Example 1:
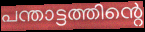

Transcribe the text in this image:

പന്താട്ടത്തിന്റെ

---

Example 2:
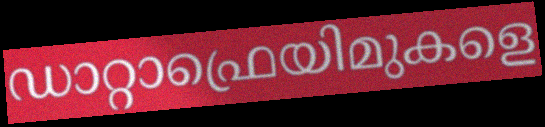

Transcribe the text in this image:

ഡാറ്റാഫ്രെയിമുകളെ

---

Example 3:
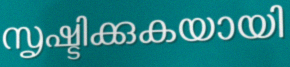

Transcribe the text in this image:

സൃഷ്ടിക്കുകയായി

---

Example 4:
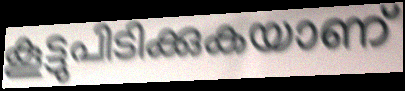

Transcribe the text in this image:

കൂട്ടുപിടിക്കുകയാണ്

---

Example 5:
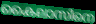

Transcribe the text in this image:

കൈലാസിനെ